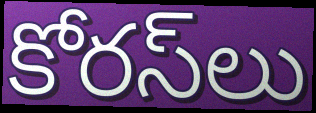
కోరస్‌లు